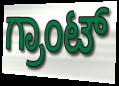
ಗ್ರಾಂಟ್